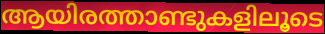
ആയിരത്താണ്ടുകളിലൂടെ